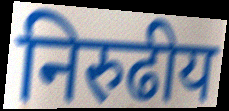
निरुढीय